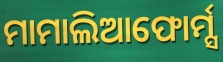
ମାମାଲିଆଫୋର୍ମ୍ସ